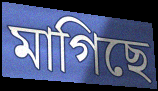
মাগিছে